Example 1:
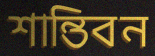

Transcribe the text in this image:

শান্তিবন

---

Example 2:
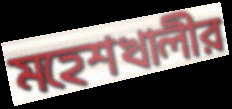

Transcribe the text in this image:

মহেশখালীর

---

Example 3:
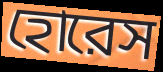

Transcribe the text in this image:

হোরেস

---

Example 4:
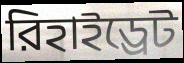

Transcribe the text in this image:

রিহাইড্রেট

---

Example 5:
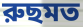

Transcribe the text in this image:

রুছমত